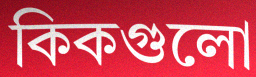
কিকগুলো